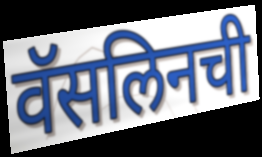
वॅसलिनची